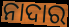
ନାଦାର